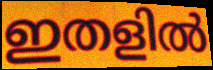
ഇതളിൽ